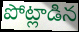
పోట్లాడిన